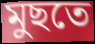
মুছতে